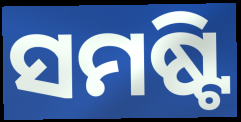
ସମଷ୍ଟି